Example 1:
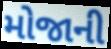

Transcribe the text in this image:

મોજાની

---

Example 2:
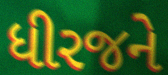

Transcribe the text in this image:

ધીરજને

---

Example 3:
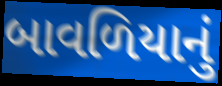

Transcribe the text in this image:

બાવળિયાનું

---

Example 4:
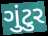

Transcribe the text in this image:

ગુંટુર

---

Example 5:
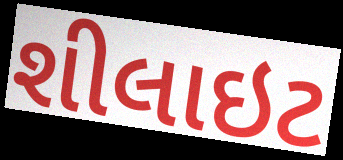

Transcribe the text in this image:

શીલાઇટ